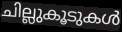
ചില്ലുകൂടുകൾ